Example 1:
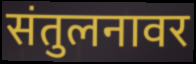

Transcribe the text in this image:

संतुलनावर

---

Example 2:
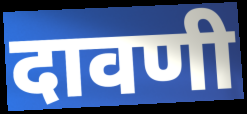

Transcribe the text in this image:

दावणी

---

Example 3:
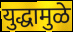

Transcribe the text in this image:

युद्धामुळे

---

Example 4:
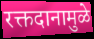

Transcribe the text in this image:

रक्तदानामुळे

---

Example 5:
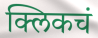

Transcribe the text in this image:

क्लिकचं